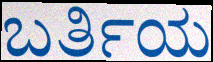
ಬರ್ತಿಯ